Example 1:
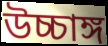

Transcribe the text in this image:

উচ্চাঙ্গ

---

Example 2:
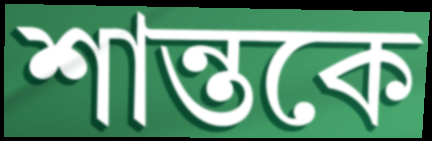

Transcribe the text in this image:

শান্তকে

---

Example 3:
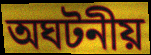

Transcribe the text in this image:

অঘটনীয়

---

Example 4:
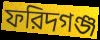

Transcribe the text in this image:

ফরিদগঞ্জ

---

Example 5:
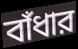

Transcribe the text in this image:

বাঁধার